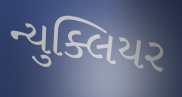
ન્યુક્લિયર